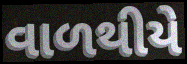
વાળથીયે